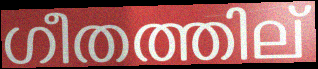
ഗീതത്തില്